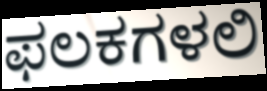
ಫಲಕಗಳಲಿ